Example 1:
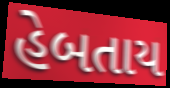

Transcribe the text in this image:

હેબતાય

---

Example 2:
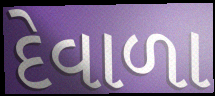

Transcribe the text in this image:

દેવાળા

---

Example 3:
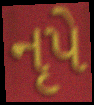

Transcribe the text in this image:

નૃપે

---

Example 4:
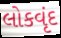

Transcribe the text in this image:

લોકવૃંદ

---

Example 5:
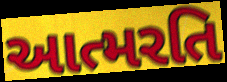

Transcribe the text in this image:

આત્મરતિ